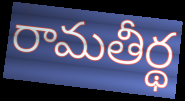
రామతీర్థ